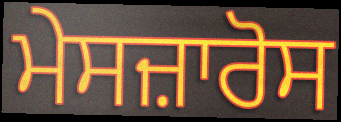
ਮੇਸਜ਼ਾਰੋਸ